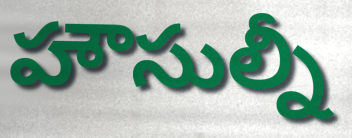
హౌసుల్నీ